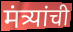
मंत्र्यांची